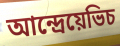
আন্দ্রেয়েভিচ